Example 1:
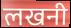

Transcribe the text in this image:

लखनी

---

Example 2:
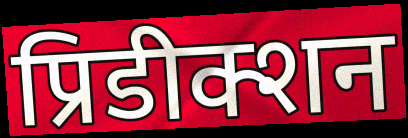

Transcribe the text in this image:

प्रिडीक्शन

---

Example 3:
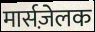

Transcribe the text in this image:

मार्सज़ेलक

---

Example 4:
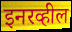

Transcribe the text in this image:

इनरव्हील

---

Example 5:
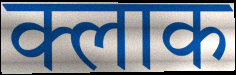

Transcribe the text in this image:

क्लाक